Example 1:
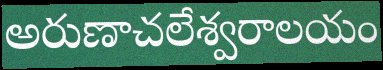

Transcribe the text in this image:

అరుణాచలేశ్వరాలయం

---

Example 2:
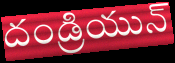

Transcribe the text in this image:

దండ్రియున్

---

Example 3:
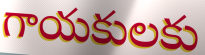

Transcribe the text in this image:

గాయకులకు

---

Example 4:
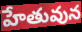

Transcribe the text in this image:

హేతువున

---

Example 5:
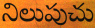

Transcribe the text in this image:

నిలుపుచు